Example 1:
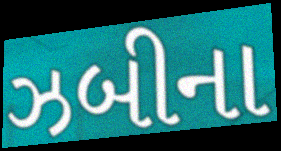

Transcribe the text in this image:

ઝબીના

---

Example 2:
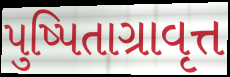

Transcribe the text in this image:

પુષ્પિતાગ્રાવૃત્ત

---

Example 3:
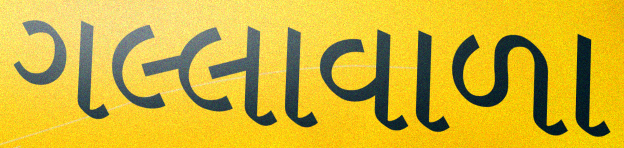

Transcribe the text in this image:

ગલ્લાવાળા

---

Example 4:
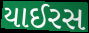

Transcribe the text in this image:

યાઈરસ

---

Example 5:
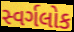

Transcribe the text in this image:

સ્વર્ગલોક